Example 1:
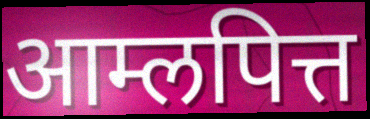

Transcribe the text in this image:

आम्लपित्त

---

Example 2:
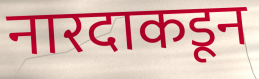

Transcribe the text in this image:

नारदाकडून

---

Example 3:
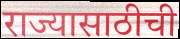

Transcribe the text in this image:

राज्यासाठीची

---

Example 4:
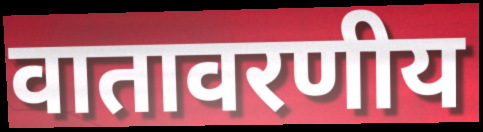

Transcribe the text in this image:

वातावरणीय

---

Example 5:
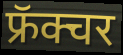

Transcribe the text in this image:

फ्रॅक्चर